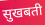
सुखबती